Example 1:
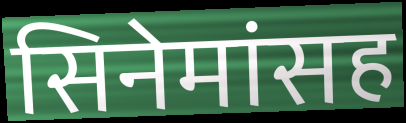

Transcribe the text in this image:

सिनेमांसह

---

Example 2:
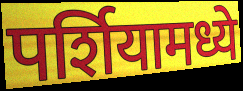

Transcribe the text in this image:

पर्शियामध्ये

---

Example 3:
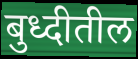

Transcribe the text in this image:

बुध्दीतील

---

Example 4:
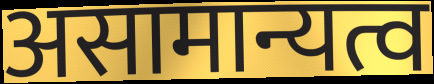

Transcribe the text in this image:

असामान्यत्व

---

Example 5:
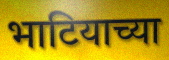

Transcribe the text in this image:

भाटियाच्या